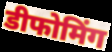
डीफोमिंग